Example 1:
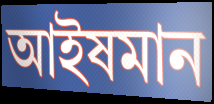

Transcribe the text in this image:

আইষমান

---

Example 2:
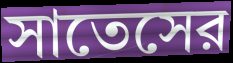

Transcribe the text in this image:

সাতেসের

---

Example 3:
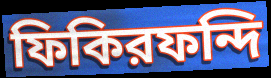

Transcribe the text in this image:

ফিকিরফন্দি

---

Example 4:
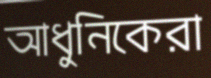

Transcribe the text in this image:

আধুনিকেরা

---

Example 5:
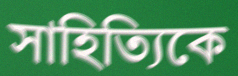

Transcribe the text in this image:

সাহিত্যিকে